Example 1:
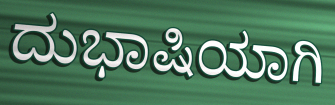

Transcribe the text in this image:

ದುಭಾಷಿಯಾಗಿ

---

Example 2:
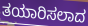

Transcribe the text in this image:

ತಯಾರಿಸಲಾದ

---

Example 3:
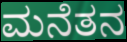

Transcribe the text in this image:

ಮನೆತನ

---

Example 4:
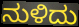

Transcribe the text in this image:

ನುಳಿದು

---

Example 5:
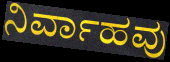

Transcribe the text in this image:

ನಿರ್ವಾಹವು